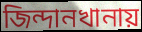
জিন্দানখানায়